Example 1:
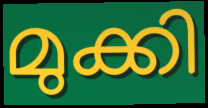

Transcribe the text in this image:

മുക്കി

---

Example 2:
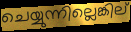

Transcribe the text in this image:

ചെയ്യുന്നില്ലെങ്കില്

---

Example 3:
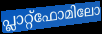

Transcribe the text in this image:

പ്ലാറ്റ്ഫോമിലോ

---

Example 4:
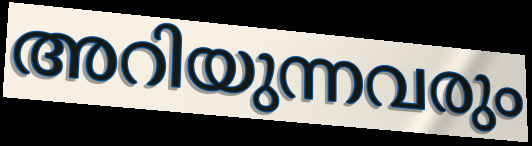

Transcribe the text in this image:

അറിയുന്നവരും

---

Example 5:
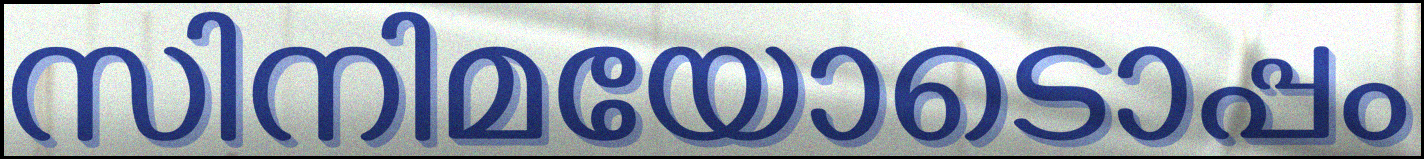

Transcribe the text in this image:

സിനിമയോടൊപ്പം